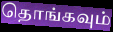
தொங்கவும்